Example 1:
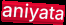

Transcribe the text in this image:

aniyata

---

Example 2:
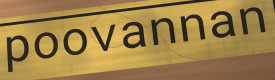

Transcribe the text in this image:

poovannan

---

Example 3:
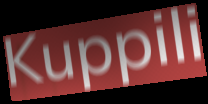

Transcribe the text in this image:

Kuppili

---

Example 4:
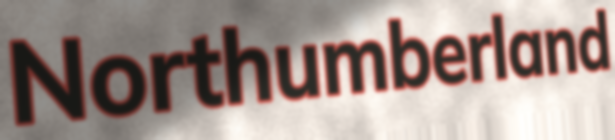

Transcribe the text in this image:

Northumberland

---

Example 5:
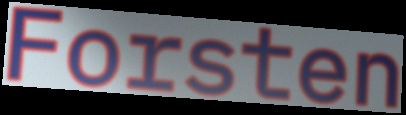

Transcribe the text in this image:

Forsten